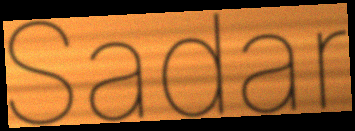
Sadar